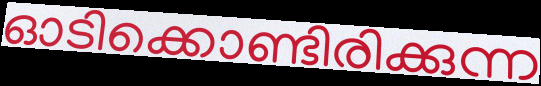
ഓടിക്കൊണ്ടിരിക്കുന്ന